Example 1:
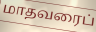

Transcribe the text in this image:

மாதவரைப்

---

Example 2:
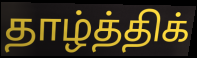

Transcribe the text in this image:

தாழ்த்திக்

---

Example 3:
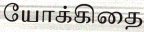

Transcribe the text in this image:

யோக்கிதை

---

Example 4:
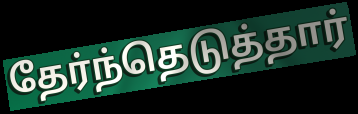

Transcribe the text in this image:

தேர்ந்தெடுத்தார்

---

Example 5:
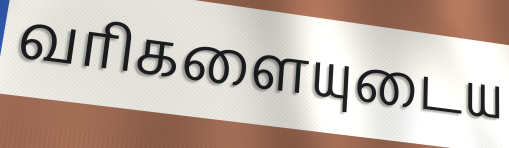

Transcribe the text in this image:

வரிகளையுடைய